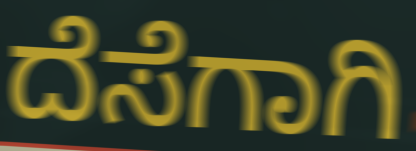
ದೆಸೆಗಾಗಿ